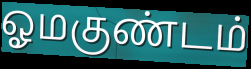
ஓமகுண்டம்